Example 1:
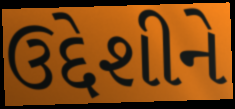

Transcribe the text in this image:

ઉદ્દેશીને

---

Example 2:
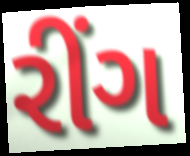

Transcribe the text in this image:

રીંગ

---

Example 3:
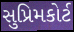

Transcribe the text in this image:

સુપ્રિમકોર્ટ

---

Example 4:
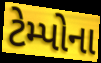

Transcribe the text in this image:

ટેમ્પોના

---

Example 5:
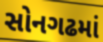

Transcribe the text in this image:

સોનગઢમાં